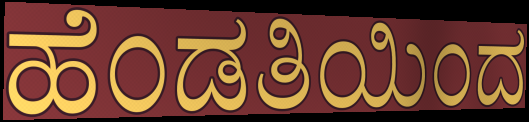
ಹೆಂಡತಿಯಿಂದ